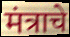
मंत्राचे